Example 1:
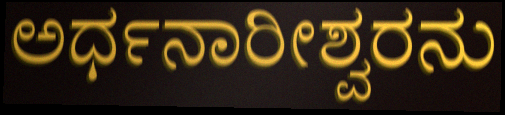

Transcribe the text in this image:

ಅರ್ಧನಾರೀಶ್ವರನು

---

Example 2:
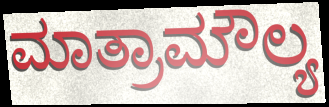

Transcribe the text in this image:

ಮಾತ್ರಾಮೌಲ್ಯ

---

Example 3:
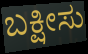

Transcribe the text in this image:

ಬಕ್ಷೀಸು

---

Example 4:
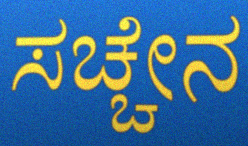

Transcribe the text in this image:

ಸಚ್ಚೇನ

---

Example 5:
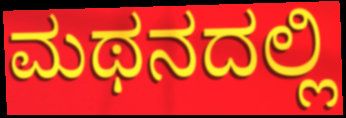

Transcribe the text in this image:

ಮಥನದಲ್ಲಿ